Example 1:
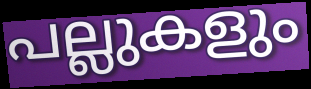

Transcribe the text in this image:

പല്ലുകളും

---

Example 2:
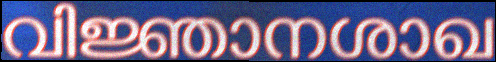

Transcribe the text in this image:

വിജ്ഞാനശാഖ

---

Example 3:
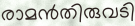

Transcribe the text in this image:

രാമൻതിരുവടി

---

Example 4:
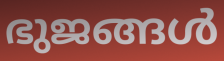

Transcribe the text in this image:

ഭുജങ്ങൾ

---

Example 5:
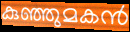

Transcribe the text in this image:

കുഞ്ഞുമകൻ